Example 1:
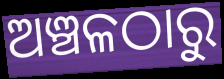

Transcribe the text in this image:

ଅଞ୍ଚଳଠାରୁ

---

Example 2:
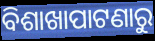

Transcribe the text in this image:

ବିଶାଖାପାଟଣାରୁ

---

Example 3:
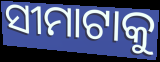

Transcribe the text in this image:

ସୀମାଟାକୁ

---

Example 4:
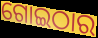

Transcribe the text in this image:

ଗୋଇଠାର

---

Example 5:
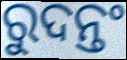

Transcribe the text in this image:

ରୁଦନ୍ତଂ